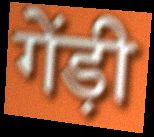
गेंड़ी